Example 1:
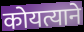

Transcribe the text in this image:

कोयत्याने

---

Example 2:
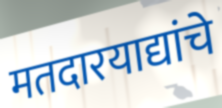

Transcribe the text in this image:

मतदारयाद्यांचे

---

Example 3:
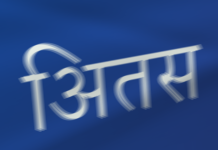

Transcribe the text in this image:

अितस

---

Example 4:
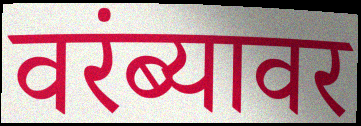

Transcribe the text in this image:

वरंब्यावर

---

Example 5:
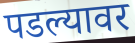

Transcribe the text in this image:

पडल्यावर